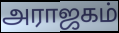
அராஜகம்